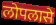
लोपलासे